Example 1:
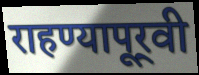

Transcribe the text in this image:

राहण्यापूर्वी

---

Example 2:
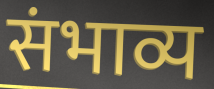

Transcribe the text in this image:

संभाव्य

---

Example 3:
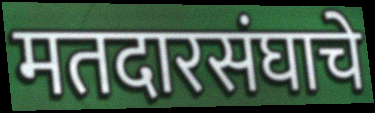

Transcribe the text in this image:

मतदारसंघाचे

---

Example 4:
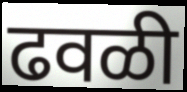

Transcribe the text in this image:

ढवळी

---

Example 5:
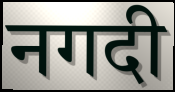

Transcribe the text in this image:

नगदी